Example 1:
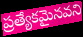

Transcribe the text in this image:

ప్రత్యేకమైనవని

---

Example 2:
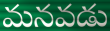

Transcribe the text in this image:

మనవడు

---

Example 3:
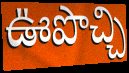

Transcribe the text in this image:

ఊపొచ్చి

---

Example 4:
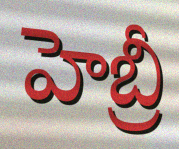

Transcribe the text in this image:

హెబ్రీ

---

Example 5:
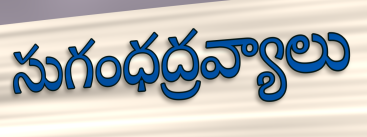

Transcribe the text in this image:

సుగంధద్రవ్యాలు